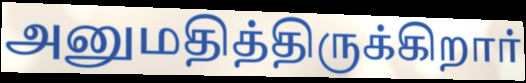
அனுமதித்திருக்கிறார்